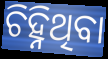
ଚିହ୍ନିଥିବା